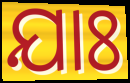
ଯାଃ